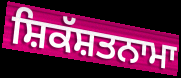
ਸ਼ਿਕੱਸ਼ਤਨਾਮਾ